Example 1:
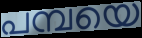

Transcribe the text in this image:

പമ്പയെ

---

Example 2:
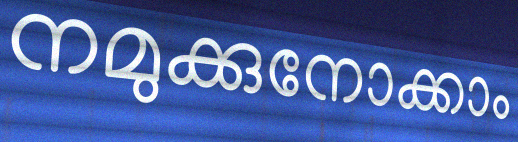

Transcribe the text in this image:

നമുക്കുനോക്കാം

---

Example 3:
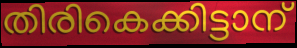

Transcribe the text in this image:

തിരികെക്കിട്ടാന്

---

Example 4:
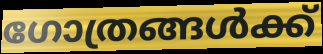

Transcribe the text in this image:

ഗോത്രങ്ങൾക്ക്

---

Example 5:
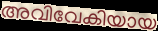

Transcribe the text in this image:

അവിവേകിയായ